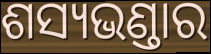
ଶସ୍ୟଭଣ୍ଡାର